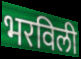
भरविली